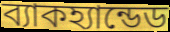
ব্যাকহ্যান্ডেড